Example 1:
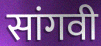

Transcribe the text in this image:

सांगवी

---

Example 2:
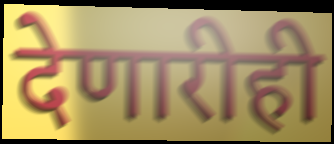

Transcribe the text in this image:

देणारीही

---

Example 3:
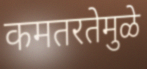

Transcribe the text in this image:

कमतरतेमुळे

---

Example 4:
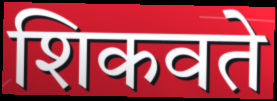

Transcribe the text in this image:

शिकवते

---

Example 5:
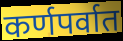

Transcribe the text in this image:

कर्णपर्वात